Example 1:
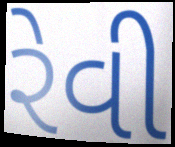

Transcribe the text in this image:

રેવી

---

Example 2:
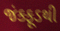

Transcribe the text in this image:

જંકફૂડથી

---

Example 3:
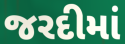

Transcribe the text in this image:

જરદીમાં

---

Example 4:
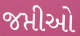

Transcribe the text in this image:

જપ્તીઓ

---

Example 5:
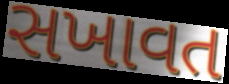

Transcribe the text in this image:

સખાવત